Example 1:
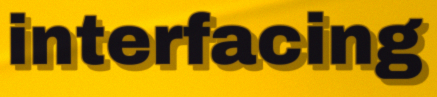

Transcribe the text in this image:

interfacing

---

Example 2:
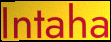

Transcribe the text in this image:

Intaha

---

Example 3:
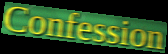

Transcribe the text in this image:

Confession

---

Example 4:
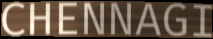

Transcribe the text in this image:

CHENNAGI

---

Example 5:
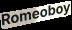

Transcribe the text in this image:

Romeoboy